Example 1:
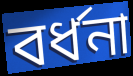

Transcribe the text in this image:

বর্ধনা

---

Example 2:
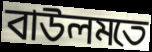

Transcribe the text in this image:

বাউলমতে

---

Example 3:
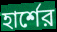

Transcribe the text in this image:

হার্শের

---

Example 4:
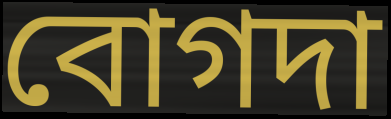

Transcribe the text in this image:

বোগদা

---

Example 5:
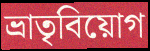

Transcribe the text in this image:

ভ্রাতৃবিয়োগ